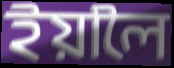
ইয়ালৈ